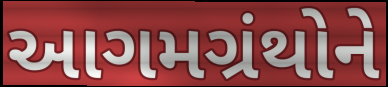
આગમગ્રંથોને